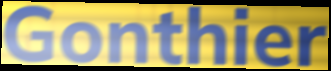
Gonthier